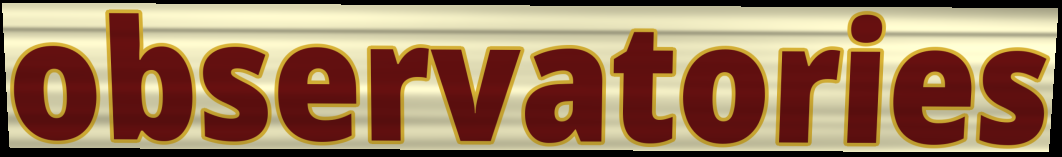
observatories